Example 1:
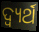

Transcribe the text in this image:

ଦ୍ୱ୍ୟର୍ଥ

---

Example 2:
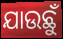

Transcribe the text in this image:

ଯାଉଛୁଁ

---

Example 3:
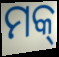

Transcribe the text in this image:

ମକ୍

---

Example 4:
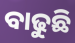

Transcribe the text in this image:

ବାଢୁଛି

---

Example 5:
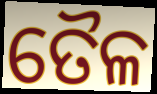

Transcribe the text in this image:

ତୈଳ